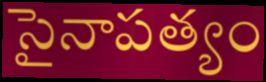
సైనాపత్యం